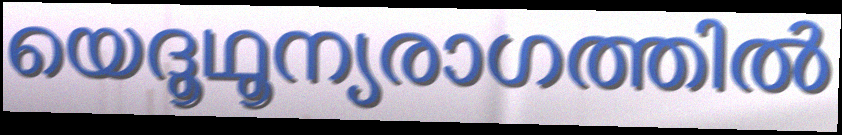
യെദൂഥൂന്യരാഗത്തിൽ